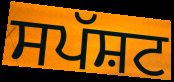
ਸਪੱਸ਼ਟ